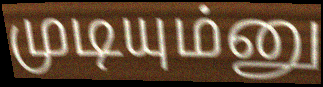
முடியும்னு